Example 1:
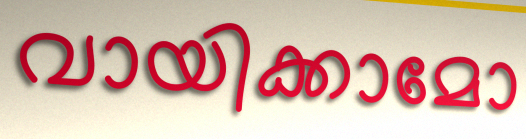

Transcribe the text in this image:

വായിക്കാമോ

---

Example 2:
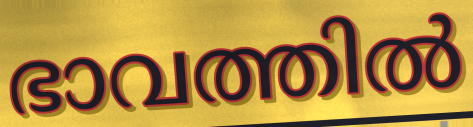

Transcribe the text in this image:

ഭാവത്തിൽ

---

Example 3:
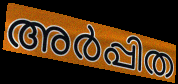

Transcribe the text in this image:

അർപ്പിത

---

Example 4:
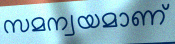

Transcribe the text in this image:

സമന്വയമാണ്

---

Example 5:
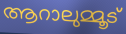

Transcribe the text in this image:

ആറാലുമ്മൂട്